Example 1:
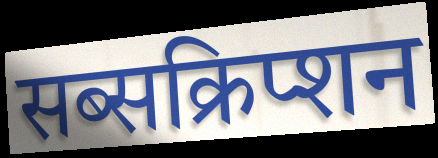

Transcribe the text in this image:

सब्सक्रिप्शन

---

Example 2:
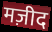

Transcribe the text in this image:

मज़ीद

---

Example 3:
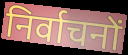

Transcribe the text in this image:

निर्वाचनों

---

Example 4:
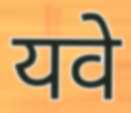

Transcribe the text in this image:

यवे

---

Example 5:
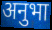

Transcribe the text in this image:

अनुभा